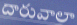
దారువాలా